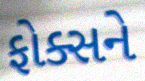
ફોક્સને